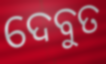
ଦେବୁତ